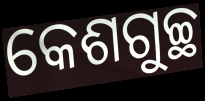
କେଶଗୁଚ୍ଛ